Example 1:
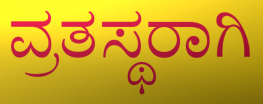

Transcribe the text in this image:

ವ್ರತಸ್ಥರಾಗಿ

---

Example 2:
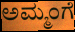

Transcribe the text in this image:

ಅಮ್ಮಂಗೆ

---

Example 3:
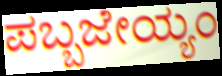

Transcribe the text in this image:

ಪಬ್ಬಜೇಯ್ಯಂ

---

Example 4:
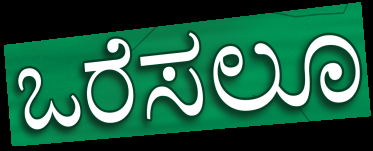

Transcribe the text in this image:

ಒರೆಸಲೂ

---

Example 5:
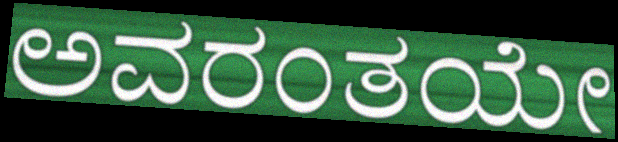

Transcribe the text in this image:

ಅವರಂತಯೇ